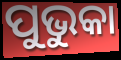
ପୁଭୁକା